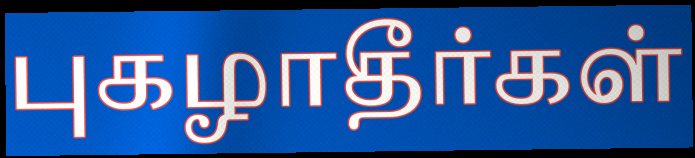
புகழாதீர்கள்